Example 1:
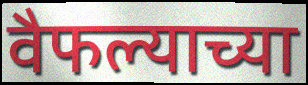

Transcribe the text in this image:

वैफल्याच्या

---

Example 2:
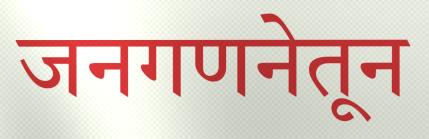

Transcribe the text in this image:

जनगणनेतून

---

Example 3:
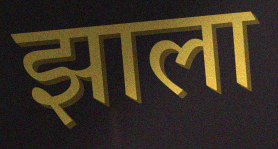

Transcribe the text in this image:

झाला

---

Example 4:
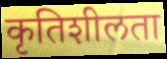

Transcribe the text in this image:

कृतिशीलता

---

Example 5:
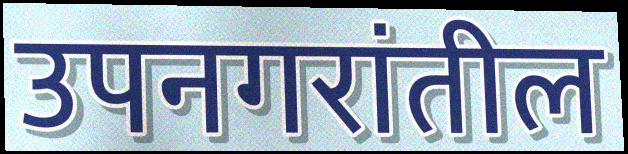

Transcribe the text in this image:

उपनगरांतील